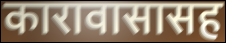
कारावासासह